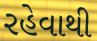
રહેવાથી